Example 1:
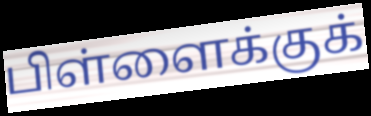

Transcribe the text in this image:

பிள்ளைக்குக்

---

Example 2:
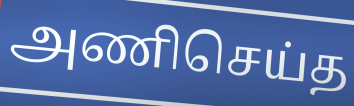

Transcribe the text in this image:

அணிசெய்த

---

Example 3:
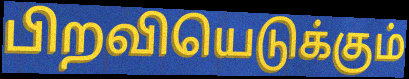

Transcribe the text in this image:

பிறவியெடுக்கும்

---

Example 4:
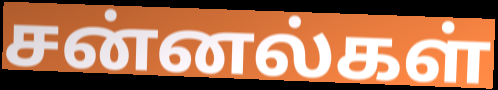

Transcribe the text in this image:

சன்னல்கள்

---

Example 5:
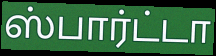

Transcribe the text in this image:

ஸ்பார்ட்டா